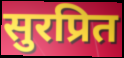
सुरप्रित